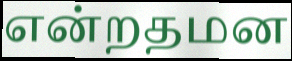
என்றதமன